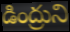
డింద్రుని